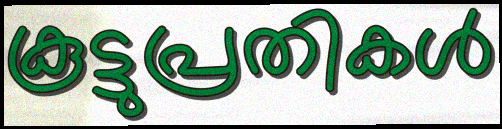
കൂട്ടുപ്രതികൾ